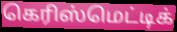
கெரிஸ்மெட்டிக்